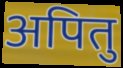
अपितु